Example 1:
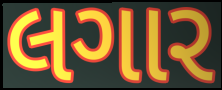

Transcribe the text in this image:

લગાર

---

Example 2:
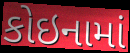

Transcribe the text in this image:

કોઇનામાં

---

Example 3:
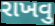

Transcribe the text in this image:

રાખવુ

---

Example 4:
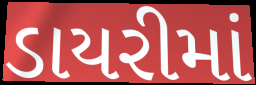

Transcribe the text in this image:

ડાયરીમાં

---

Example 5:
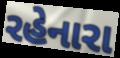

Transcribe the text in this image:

રહેનારા